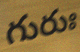
గురుః